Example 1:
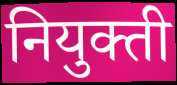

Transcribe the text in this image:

नियुक्ती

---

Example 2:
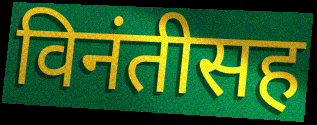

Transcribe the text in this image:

विनंतीसह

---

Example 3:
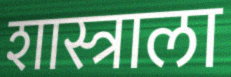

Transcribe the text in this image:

शास्त्राला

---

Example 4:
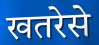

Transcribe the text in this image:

खतरेसे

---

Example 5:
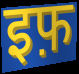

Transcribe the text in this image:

इफ़